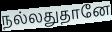
நல்லதுதானே